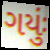
ગયુંઃ